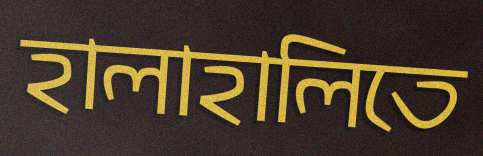
হালাহালিতে